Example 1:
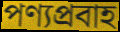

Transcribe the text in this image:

পণ্যপ্রবাহ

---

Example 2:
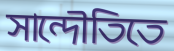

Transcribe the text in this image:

সান্দৌতিতে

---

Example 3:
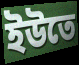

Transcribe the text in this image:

ইউতে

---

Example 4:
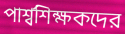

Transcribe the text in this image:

পার্শ্বশিক্ষকদের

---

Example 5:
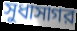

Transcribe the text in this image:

সুধাসাগর